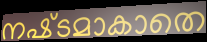
നഷ്‌ടമാകാതെ